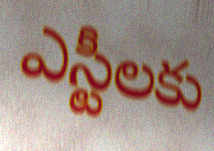
ఎస్టీలకు